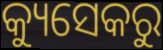
କ୍ୟୁସେକରୁ